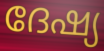
ദേഷ്യ